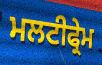
ਮਲਟੀਫ੍ਰੇਮ